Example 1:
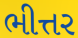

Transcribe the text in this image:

ભીત્તર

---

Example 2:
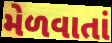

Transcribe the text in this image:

મેળવાતાં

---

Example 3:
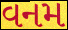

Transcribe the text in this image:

વનમ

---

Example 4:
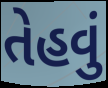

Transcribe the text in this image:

તેહવું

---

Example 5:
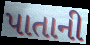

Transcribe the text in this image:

પાતાની